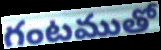
గంటముతో